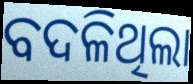
ବଦଳିଥିଲା